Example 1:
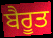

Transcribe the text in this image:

ਬੈਰੂਤ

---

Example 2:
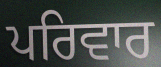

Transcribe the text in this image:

ਪਰਿਵਾਰ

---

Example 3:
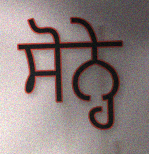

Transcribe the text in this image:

ਸੋਨ੍ਹੇ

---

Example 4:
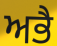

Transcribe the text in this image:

ਅਭੈ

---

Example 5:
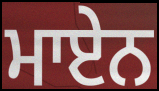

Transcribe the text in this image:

ਮਾਏਨ